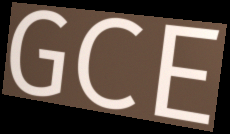
GCE